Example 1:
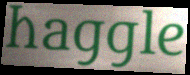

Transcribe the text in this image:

haggle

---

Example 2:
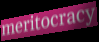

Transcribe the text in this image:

meritocracy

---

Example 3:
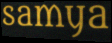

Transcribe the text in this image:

samya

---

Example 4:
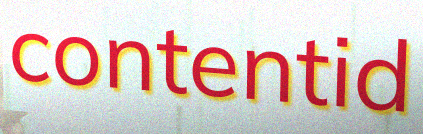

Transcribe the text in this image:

contentid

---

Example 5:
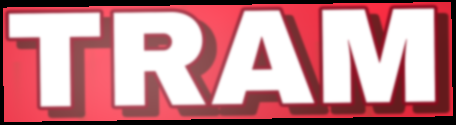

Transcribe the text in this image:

TRAM